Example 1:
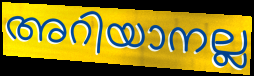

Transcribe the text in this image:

അറിയാനല്ല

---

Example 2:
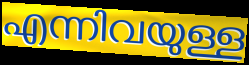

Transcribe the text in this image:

എന്നിവയുള്ള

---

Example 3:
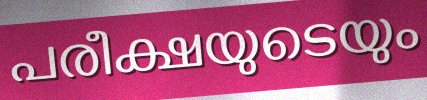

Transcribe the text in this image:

പരീക്ഷയുടെയും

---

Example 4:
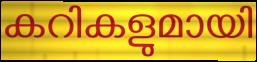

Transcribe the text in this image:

കറികളുമായി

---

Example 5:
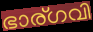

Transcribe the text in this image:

ഭാര്ഗവി